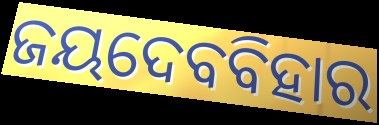
ଜୟଦେବବିହାର